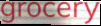
grocery